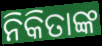
ନିକିତାଙ୍କ